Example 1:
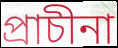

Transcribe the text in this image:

প্রাচীনা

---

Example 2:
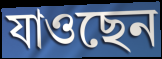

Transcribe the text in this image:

যাওছেন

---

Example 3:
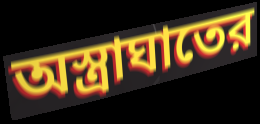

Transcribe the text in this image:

অস্ত্রাঘাতের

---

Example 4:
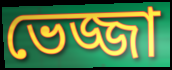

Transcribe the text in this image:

ভেজ্জা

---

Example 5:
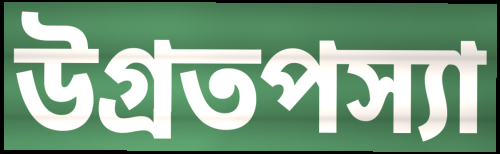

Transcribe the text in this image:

উগ্রতপস্যা